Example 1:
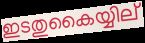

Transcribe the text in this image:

ഇടതുകൈയ്യില്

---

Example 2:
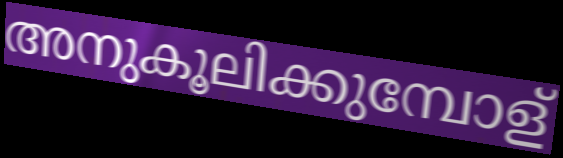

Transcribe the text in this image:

അനുകൂലിക്കുമ്പോള്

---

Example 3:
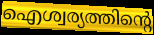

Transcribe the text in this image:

ഐശ്വര്യത്തിന്റെ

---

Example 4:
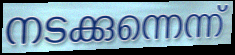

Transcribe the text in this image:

നടക്കുന്നെന്ന്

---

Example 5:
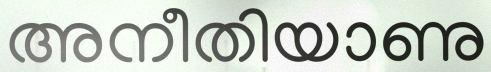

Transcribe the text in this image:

അനീതിയാണു